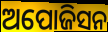
ଅପୋଜିସନ